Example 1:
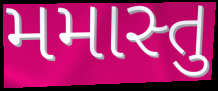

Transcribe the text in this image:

મમાસ્તુ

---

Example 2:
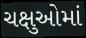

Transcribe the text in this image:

ચક્ષુઓમાં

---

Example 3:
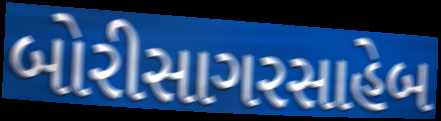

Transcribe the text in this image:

બોરીસાગરસાહેબ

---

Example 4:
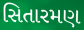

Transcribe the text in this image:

સિતારમણ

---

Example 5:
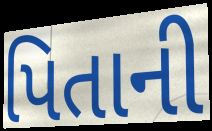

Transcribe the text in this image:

પિતાની